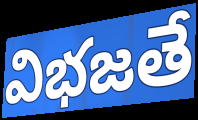
విభజతే